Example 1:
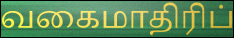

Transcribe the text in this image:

வகைமாதிரிப்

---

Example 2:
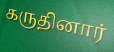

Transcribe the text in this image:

கருதினார்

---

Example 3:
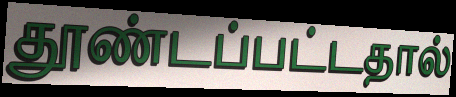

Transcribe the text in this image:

தூண்டப்பட்டதால்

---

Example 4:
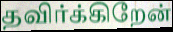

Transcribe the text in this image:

தவிர்க்கிறேன்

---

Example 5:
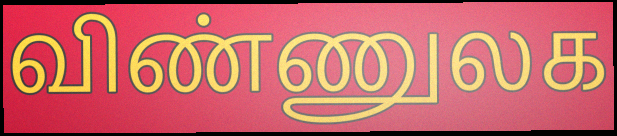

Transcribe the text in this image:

விண்ணுலக